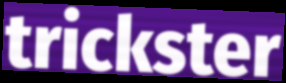
trickster